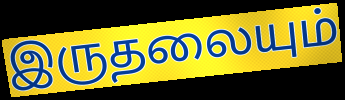
இருதலையும்